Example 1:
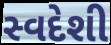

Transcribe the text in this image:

સ્વદેશી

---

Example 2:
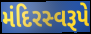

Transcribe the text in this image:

મંદિરસ્વરૂપે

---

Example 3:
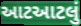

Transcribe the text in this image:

આટઆટલું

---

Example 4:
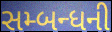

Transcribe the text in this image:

સમ્બન્ધની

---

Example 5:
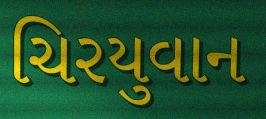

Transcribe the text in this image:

ચિરયુવાન